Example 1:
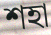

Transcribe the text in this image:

শহা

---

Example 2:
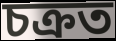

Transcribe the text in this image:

চক্ৰত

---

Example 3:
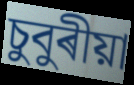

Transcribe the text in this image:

চুবুৰীয়া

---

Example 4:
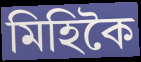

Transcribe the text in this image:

মিহিকৈ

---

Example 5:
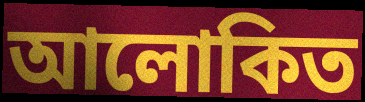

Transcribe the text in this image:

আলোকিত